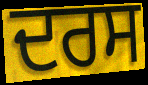
ਦਰਸ